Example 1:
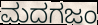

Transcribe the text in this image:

ಮದಗಜಂ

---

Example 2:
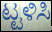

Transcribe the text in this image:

ಟ್ಟಳಿಸಿ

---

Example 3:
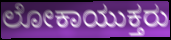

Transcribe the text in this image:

ಲೋಕಾಯುಕ್ತರು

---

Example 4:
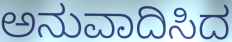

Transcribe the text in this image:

ಅನುವಾದಿಸಿದ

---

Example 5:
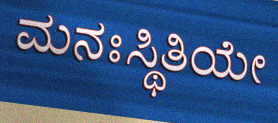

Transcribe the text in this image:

ಮನಃಸ್ಥಿತಿಯೇ